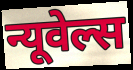
न्यूवेल्स